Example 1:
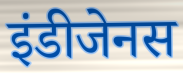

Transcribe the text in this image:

इंडीजेनस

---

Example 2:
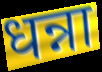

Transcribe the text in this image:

धन्ना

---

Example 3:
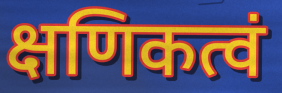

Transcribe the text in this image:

क्षणिकत्वं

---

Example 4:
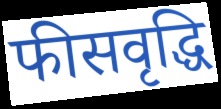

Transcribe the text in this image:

फीसवृद्धि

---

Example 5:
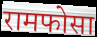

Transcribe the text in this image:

रामफोसा